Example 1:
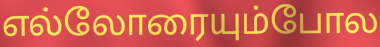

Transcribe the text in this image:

எல்லோரையும்போல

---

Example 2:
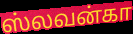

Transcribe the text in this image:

ஸ்லவன்கா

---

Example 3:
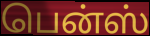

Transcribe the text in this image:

பென்ஸ்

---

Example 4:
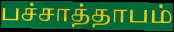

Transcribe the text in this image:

பச்சாத்தாபம்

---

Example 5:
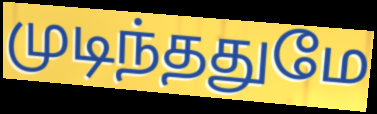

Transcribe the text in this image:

முடிந்ததுமே